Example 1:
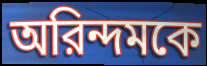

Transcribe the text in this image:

অরিন্দমকে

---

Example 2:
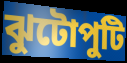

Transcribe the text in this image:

ঝুটোপুটি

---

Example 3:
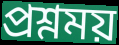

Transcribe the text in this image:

প্রশ্নময়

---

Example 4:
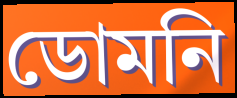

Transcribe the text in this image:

ডোমনি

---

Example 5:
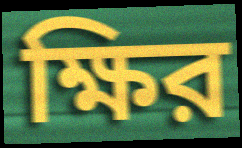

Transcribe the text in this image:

ক্ষির